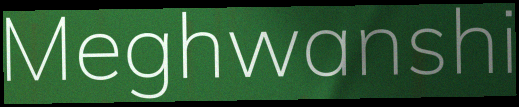
Meghwanshi